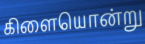
கிளையொன்று